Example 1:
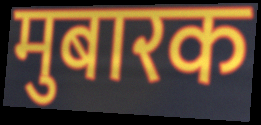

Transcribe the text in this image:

मुबारक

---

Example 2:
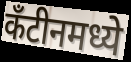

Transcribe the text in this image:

कँटीनमध्ये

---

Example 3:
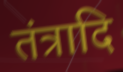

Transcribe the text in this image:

तंत्रादि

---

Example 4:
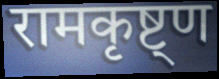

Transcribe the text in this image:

रामकृष्ट्ण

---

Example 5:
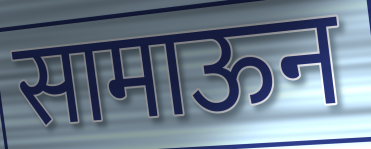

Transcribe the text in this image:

सामाऊन